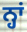
ਨ੍ਹਾਂ